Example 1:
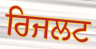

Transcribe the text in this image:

ਰਿਜਲਟ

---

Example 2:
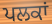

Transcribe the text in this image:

ਪਲਕਾਂ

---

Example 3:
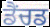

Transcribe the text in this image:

ਡੈਂਚਡ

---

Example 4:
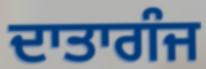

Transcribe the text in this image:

ਦਾਤਾਗੰਜ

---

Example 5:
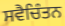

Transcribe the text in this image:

ਸਵੈਚਿੰਤਨ